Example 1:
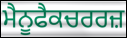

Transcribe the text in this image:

ਮੈਨੂਫੈਕਚਰਰਜ਼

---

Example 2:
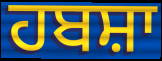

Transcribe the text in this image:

ਹਬਸ਼ਾ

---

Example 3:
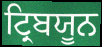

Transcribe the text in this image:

ਟ੍ਰਿਬਯੂਨ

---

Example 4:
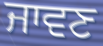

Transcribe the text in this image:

ਜਾਵਣ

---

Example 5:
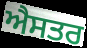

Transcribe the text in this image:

ਐਸਤਰ